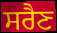
ਸਰੈਣ